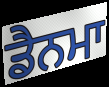
ਡੈਨਮਾ